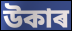
উকাৰ